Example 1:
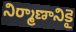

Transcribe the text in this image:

నిర్మాణానికై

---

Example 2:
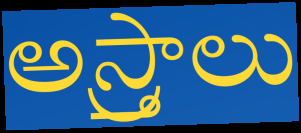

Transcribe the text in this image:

అస్ర్తాలు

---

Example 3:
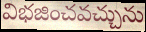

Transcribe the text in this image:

విభజించవచ్చును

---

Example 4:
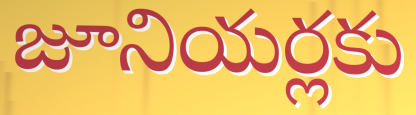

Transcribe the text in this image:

జూనియర్లకు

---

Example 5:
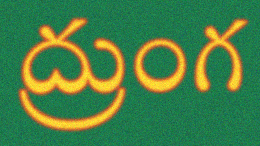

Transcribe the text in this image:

ద్రుంగ